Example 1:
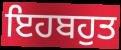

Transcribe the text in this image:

ਇਹਬਹੁਤ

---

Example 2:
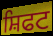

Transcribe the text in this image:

ਸ਼ਿਫਟ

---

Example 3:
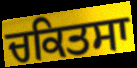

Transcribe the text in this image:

ਚਕਿਤਸਾ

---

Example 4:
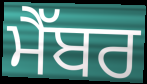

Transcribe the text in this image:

ਮੈੱਬਰ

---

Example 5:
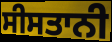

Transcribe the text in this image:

ਸੀਸਤਾਨੀ